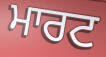
ਮਾਰਟ